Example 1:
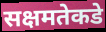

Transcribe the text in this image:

सक्षमतेकडे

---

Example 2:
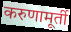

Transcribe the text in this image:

करुणामूर्ती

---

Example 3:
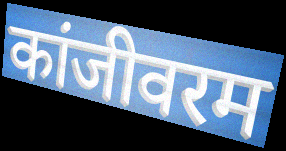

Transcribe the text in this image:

कांजीवरम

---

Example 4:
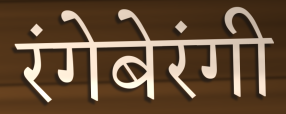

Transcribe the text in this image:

रंगेबेरंगी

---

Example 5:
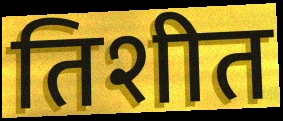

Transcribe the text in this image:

तिशीत